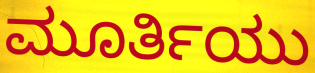
ಮೂರ್ತಿಯು